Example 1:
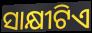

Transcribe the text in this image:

ସାକ୍ଷୀଟିଏ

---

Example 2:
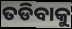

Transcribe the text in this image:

ତଡିବାକୁ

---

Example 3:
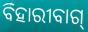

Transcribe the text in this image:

ବିହାରୀବାଗ୍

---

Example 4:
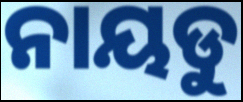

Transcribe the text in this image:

ନାୟଡୁ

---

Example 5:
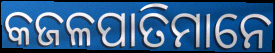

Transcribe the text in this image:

କଜଳପାତିମାନେ